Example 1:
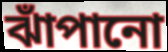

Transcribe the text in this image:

ঝাঁপানো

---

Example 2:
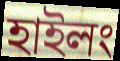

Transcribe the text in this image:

হাইলং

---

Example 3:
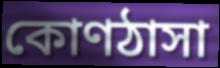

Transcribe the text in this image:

কোণঠাসা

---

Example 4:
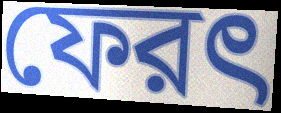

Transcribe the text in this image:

ফেরৎ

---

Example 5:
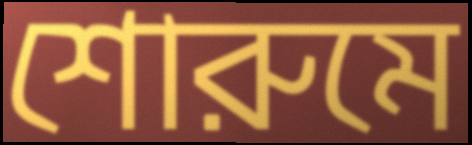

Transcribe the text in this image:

শোরুমে